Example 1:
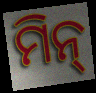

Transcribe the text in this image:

ମିନ୍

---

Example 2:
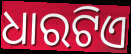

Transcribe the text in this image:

ଧାରଟିଏ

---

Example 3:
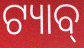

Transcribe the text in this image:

ଟ୍ୟାବ୍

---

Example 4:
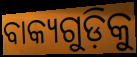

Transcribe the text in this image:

ବାକ୍ୟଗୁଡ଼ିକୁ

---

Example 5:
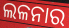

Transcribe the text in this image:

ଲଳନାର